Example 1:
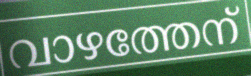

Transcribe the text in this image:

വാഴത്തേന്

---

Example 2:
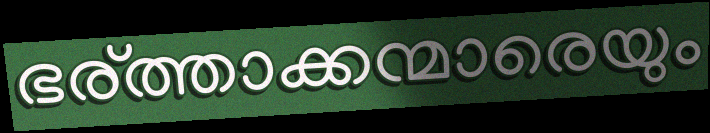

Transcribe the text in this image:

ഭര്ത്താക്കന്മാരെയും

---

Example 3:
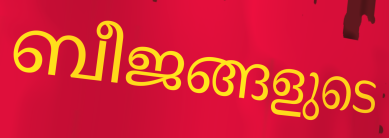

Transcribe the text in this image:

ബീജങ്ങളുടെ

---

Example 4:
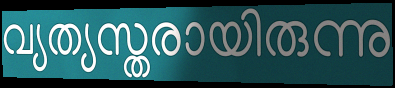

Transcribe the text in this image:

വ്യത്യസ്തരായിരുന്നു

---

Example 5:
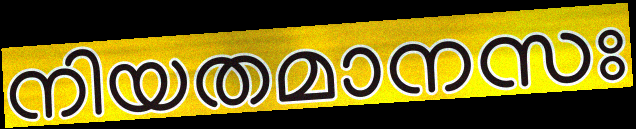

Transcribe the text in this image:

നിയതമാനസഃ